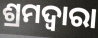
ଶ୍ରମଦ୍ୱାରା